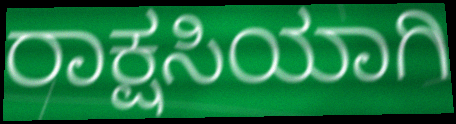
ರಾಕ್ಷಸಿಯಾಗಿ